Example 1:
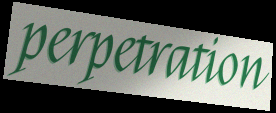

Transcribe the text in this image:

perpetration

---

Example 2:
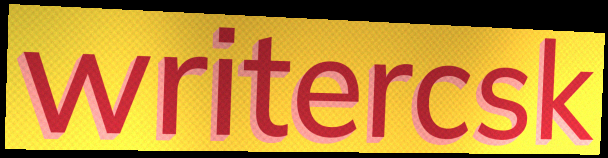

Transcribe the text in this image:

writercsk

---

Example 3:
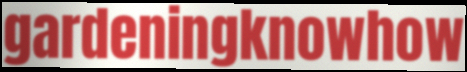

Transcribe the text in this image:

gardeningknowhow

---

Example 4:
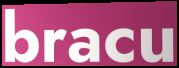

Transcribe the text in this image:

bracu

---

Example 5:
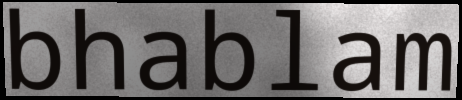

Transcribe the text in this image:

bhablam